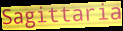
Sagittaria